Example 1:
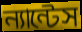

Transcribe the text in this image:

ন্যান্টেস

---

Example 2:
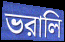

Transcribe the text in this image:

ভরালি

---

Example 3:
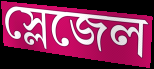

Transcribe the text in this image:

স্লেজেল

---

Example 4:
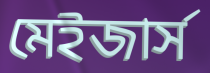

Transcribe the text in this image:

মেইজার্স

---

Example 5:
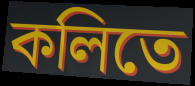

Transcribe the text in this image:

কলিতে